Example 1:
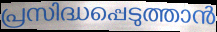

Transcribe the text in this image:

പ്രസിദ്ധപ്പെടുത്താൻ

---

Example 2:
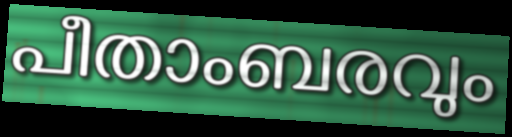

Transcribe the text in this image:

പീതാംബരവും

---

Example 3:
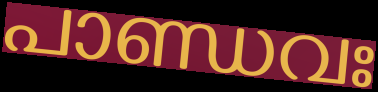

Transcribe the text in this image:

പാണ്ഡവഃ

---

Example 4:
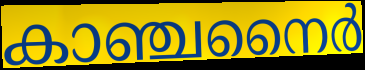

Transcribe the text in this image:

കാഞ്ചനൈർ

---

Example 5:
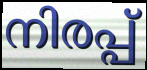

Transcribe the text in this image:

നിരപ്പ്